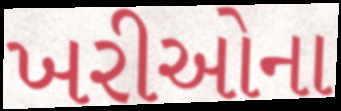
ખરીઓના